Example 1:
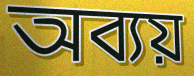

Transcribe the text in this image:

অব্যয়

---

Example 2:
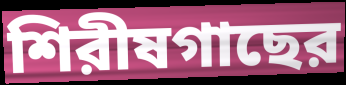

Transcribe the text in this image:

শিরীষগাছের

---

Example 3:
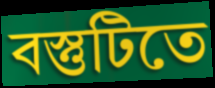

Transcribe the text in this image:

বস্তুটিতে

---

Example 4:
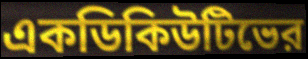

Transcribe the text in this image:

একডিকিউটিভের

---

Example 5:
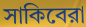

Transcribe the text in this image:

সাকিবেরা